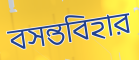
বসন্তবিহার